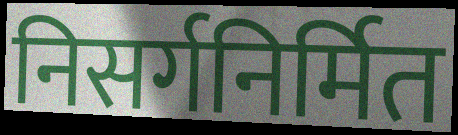
निसर्गनिर्मित